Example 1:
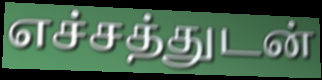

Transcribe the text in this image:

எச்சத்துடன்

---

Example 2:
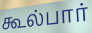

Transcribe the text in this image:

கூல்பார்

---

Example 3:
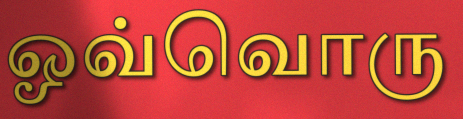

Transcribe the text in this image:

ஓவ்வொரு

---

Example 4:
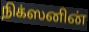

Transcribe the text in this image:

நிக்ஸனின்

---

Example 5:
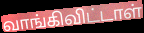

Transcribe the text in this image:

வாங்கிவிட்டாள்